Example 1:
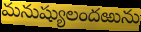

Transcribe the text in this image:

మనుష్యులందఱును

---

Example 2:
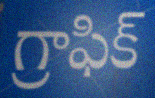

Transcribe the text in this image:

గ్రాఫిక్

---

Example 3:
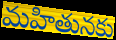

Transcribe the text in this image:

మహితునకు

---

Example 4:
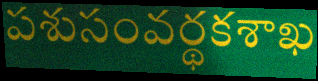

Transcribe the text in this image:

పశుసంవర్థకశాఖ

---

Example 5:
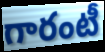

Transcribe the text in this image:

గారంటీ